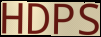
HDPS